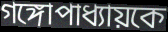
গঙ্গোপাধ্যায়কে